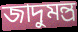
জাদুমন্ত্র